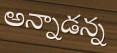
అన్నాడన్న